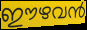
ഈഴവൻ